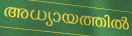
അധ്യായത്തിൽ